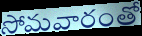
సోమవారంతో